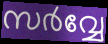
സർവ്വേ